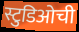
स्टुडिओची